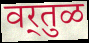
वर्तुळ